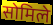
सोमिले